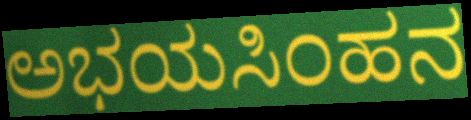
ಅಭಯಸಿಂಹನ